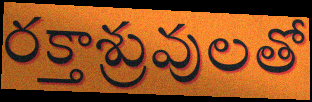
రక్తాశ్రువులతో